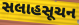
સલાહસૂચન